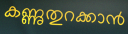
കണ്ണുതുറക്കാൻ